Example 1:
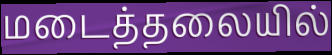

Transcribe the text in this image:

மடைத்தலையில்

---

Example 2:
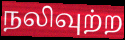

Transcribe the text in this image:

நலிவுற்ற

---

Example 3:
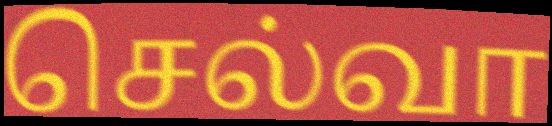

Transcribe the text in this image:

செல்வா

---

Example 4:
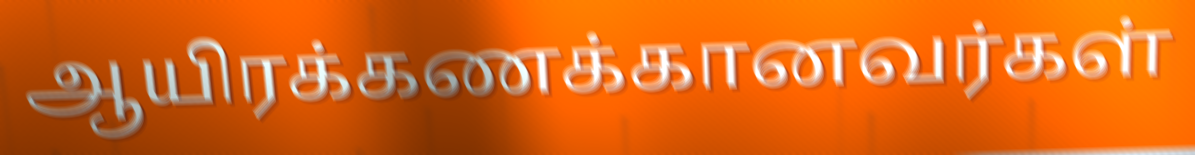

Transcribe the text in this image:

ஆயிரக்கணக்கானவர்கள்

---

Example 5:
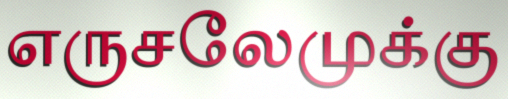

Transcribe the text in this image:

எருசலேமுக்கு